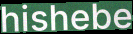
hishebe